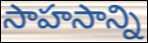
సాహసాన్ని